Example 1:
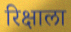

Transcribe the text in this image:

रिक्षाला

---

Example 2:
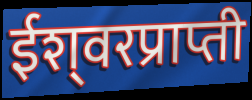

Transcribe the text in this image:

ईश्वरप्राप्ती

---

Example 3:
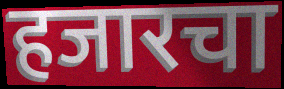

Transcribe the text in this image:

हजारचा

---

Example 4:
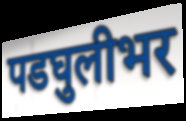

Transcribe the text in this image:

पडघुलीभर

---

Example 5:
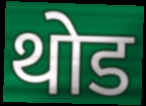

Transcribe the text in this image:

थोड